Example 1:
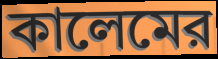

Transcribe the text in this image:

কালেমের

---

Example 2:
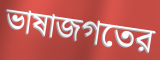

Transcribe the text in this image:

ভাষাজগতের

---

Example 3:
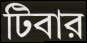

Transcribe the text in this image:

টিবার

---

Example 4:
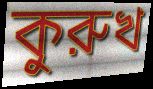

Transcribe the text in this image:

কুরুখ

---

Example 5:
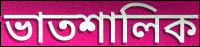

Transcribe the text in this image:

ভাতশালিক